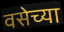
वसेच्या